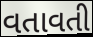
વતાવતી